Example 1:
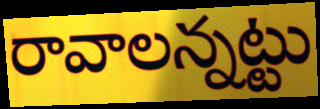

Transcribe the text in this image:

రావాలన్నట్టు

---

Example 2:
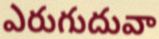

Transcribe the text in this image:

ఎరుగుదువా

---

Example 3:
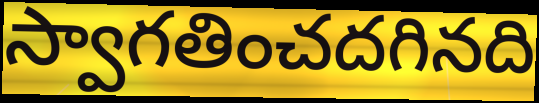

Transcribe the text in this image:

స్వాగతించదగినది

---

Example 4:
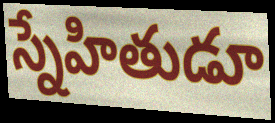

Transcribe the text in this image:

స్నేహితుడూ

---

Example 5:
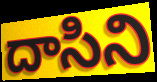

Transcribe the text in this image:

దాసిని